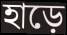
হাড়ে